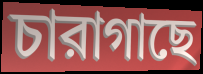
চারাগাছে